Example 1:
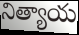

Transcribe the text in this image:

నిత్యాయ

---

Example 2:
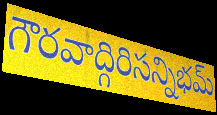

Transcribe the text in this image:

గౌరవాద్గిరిసన్నిభమ్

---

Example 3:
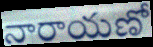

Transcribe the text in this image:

నారాయణో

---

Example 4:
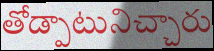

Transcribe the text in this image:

తోడ్పాటునిచ్చారు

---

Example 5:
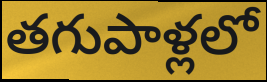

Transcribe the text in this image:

తగుపాళ్లలో